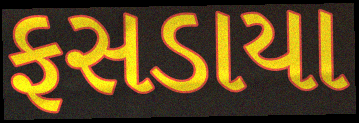
ફસડાયા